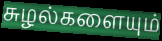
சுழல்களையும்